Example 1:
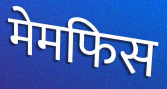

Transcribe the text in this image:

मेमफिस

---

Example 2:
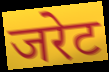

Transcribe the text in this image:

जरेट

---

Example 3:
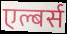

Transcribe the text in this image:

एल्बर्स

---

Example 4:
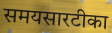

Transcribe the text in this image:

समयसारटीका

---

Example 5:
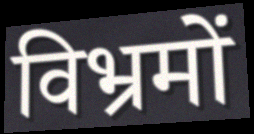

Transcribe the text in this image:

विभ्रमों